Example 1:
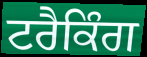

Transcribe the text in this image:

ਟਰੈਕਿੰਗ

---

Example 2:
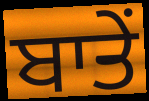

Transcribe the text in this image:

ਬਾਤੇਂ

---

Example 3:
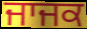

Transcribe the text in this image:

ਜਾਜਕ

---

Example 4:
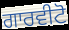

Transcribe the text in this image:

ਗਾਰਵੀਟੋ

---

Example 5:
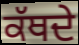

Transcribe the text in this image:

ਕੱਥਦੇ